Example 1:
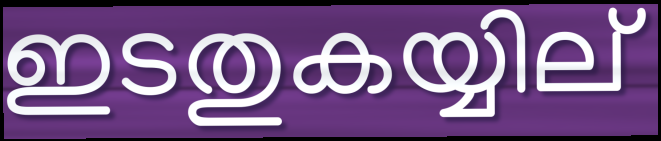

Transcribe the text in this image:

ഇടതുകയ്യില്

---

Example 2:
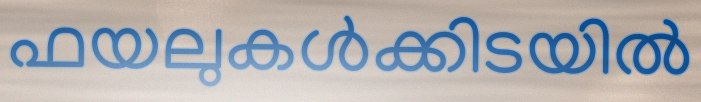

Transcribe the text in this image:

ഫയലുകൾക്കിടയിൽ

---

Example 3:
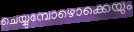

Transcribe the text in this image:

ചെയ്യുമ്പോഴൊക്കെയും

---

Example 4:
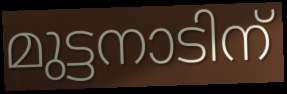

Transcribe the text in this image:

മുട്ടനാടിന്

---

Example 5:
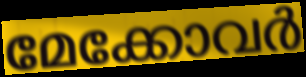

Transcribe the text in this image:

മേക്കോവർ